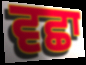
ਵਛਾ